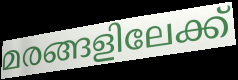
മരങ്ങളിലേക്ക്